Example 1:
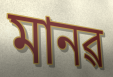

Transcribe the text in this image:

মানৱ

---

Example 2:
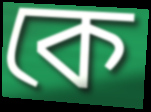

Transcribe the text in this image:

কে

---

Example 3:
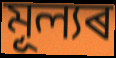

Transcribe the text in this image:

মূল্যৰ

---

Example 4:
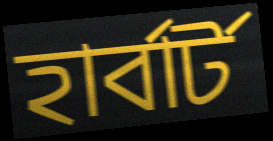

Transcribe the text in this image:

হাৰ্বাৰ্ট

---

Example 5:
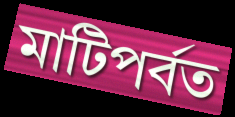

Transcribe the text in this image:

মাটিপৰ্বত